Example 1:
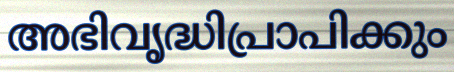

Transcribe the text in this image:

അഭിവൃദ്ധിപ്രാപിക്കും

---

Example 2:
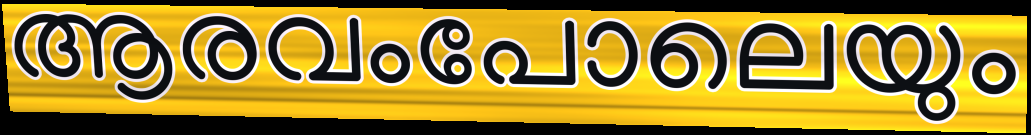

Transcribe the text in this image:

ആരവംപോലെയും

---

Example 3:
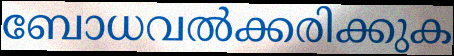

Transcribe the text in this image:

ബോധവൽക്കരിക്കുക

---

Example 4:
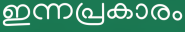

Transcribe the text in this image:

ഇന്നപ്രകാരം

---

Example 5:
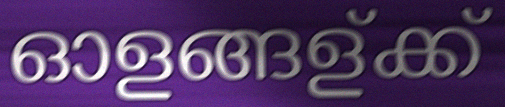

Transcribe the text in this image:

ഓളങ്ങള്ക്ക്